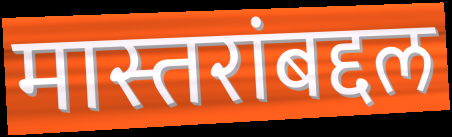
मास्तरांबद्दल